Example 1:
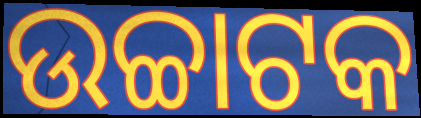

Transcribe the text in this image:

ଉଚ୍ଚାଟକ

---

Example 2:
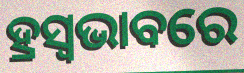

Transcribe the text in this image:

ହ୍ରସ୍ୱଭାବରେ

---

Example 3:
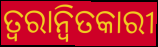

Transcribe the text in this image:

ତ୍ୱରାନ୍ୱିତକାରୀ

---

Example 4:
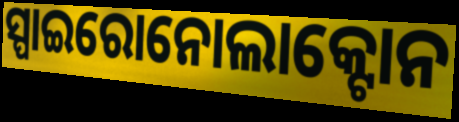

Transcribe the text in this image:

ସ୍ପାଇରୋନୋଲାକ୍ଟୋନ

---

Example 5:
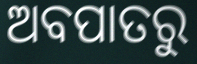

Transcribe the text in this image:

ଅବପାତରୁ